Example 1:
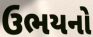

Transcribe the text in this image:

ઉભયનો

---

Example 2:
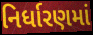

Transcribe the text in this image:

નિર્ધારણમાં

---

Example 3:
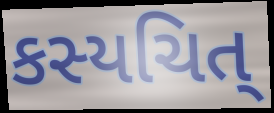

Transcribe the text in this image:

કસ્યચિત્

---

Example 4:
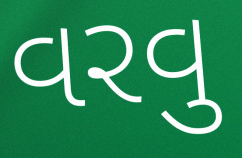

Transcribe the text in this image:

વરવુ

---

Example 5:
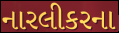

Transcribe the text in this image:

નારલીકરના